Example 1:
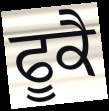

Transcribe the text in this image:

ਫੂਕੈ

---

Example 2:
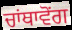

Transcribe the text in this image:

ਚਾਂਥਾਵੋਂਗ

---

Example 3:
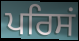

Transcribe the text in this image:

ਪਰਿਸਂ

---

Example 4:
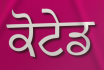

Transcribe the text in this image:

ਕੋਟੇਡ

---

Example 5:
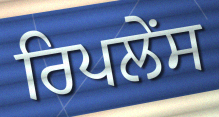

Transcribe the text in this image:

ਰਿਪਲੇਂਸ